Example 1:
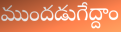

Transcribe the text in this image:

ముందడుగేద్దాం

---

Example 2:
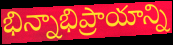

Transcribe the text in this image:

భిన్నాభిప్రాయాన్ని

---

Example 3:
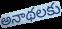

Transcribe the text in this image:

అనాథలకు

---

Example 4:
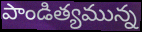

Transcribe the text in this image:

పాండిత్యమున్న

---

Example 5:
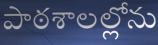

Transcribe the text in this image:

పాఠశాలల్లోను